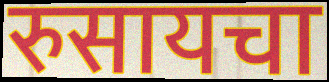
रुसायचा